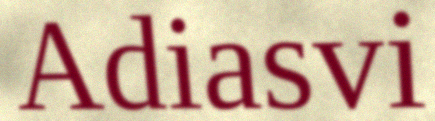
Adiasvi